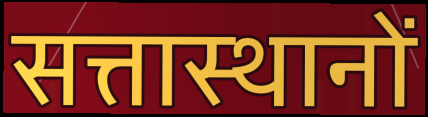
सत्तास्थानों